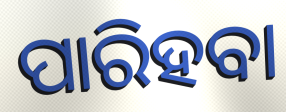
ପାରିହବା